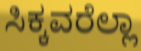
ಸಿಕ್ಕವರೆಲ್ಲಾ